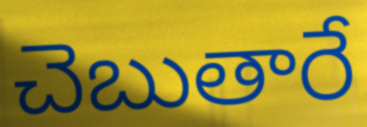
చెబుతారే